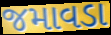
જમાવડા